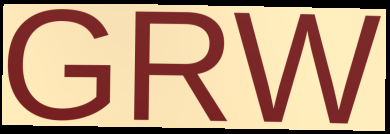
GRW